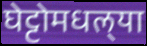
घेट्टोमधल्या